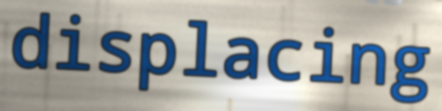
displacing